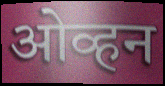
ओव्हन